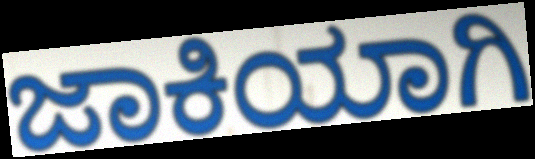
ಜಾಕಿಯಾಗಿ